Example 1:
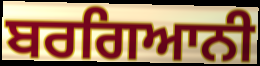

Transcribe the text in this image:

ਬਰਗਿਆਨੀ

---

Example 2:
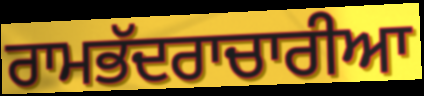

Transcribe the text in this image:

ਰਾਮਭੱਦਰਾਚਾਰੀਆ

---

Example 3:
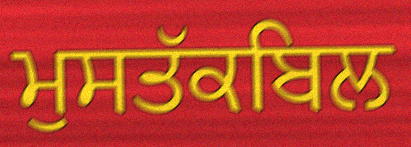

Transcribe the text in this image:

ਮੁਸਤੱਕਬਿਲ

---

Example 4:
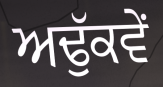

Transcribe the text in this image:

ਅਢੁੱਕਵੇਂ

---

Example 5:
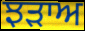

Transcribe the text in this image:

ਝੜਾਅ